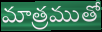
మాత్రముతో